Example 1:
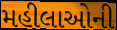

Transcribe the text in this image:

મહીલાઓની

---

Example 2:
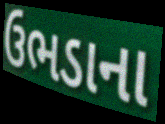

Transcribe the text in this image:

ઉભડાના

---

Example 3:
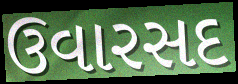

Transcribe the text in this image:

ઉવારસદ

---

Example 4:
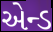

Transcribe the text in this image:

એન્ડ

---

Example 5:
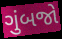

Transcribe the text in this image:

ગુંબજો